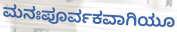
ಮನಃಪೂರ್ವಕವಾಗಿಯೂ